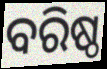
ବରିଷ୍ଠ